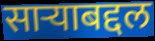
साऱ्याबद्दल